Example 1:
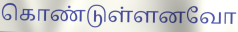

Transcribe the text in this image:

கொண்டுள்ளனவோ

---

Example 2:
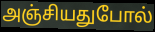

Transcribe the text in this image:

அஞ்சியதுபோல்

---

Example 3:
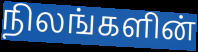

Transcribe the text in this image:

நிலங்களின்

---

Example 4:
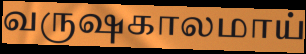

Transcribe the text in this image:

வருஷகாலமாய்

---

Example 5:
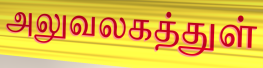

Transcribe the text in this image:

அலுவலகத்துள்